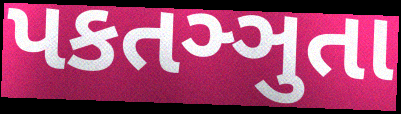
પકતઞ્ઞુતા